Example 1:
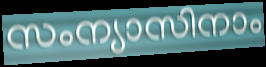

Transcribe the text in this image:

സംന്യാസിനാം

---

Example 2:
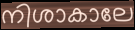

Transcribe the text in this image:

നിശാകാലേ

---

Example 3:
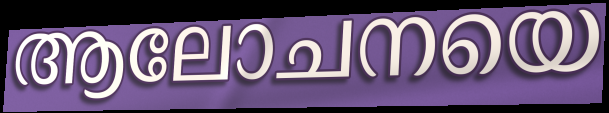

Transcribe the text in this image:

ആലോചനയെ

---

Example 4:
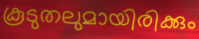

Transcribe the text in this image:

കൂടുതലുമായിരിക്കും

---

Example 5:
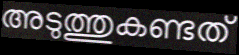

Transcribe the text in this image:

അടുത്തുകണ്ടത്